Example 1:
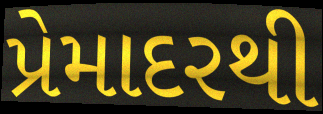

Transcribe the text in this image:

પ્રેમાદરથી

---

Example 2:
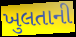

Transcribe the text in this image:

ખુલતાની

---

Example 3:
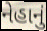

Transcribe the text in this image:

નેહાનું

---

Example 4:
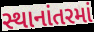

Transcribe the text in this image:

સ્થાનાંતરમાં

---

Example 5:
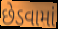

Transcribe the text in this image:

છેડવામાં